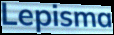
Lepisma